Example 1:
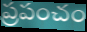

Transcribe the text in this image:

ప్రపంచం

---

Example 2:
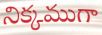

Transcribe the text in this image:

నిక్కముగా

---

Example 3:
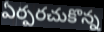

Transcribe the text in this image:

ఏర్పరచుకొన్న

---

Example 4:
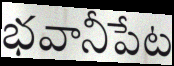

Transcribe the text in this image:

భవానీపేట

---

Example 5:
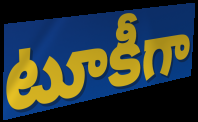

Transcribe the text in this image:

టూకీగా